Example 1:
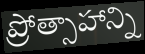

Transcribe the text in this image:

ప్రోత్సాహాన్ని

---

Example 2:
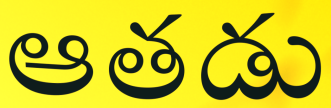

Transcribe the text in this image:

ఆతడు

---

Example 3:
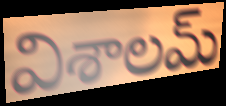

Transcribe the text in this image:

విశాలమ్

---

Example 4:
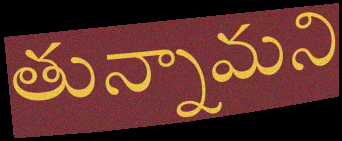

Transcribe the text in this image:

తున్నామని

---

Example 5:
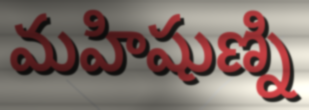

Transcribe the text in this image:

మహిషుణ్ని